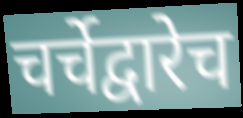
चर्चेद्वारेच